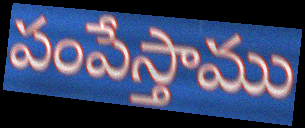
పంపేస్తాము